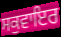
ਸਕੁਵਾਇਰ